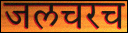
जलचरच